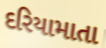
દરિયામાતા